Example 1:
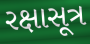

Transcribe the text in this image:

રક્ષાસૂત્ર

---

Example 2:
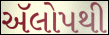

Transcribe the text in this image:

ઍલોપથી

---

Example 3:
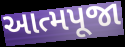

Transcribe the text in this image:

આત્મપૂજા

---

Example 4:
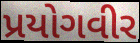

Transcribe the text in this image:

પ્રયોગવીર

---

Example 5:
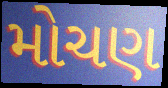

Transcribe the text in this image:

મોચણ